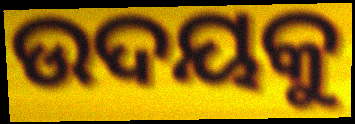
ଉଦୟକୁ